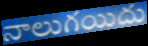
నాలుగయిదు